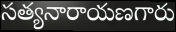
సత్యనారాయణగారు